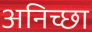
अनिच्छा